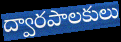
ద్వారపాలకులు